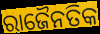
ରାଜୈନତିକ